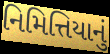
નિમિત્તિયાનું